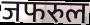
जफरुल